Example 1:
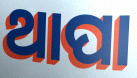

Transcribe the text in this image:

ଥାପା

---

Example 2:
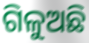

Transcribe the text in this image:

ଗିଳୁଅଛି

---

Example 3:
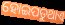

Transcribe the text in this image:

ହୋଇପଡୁଥାଏ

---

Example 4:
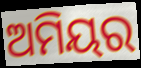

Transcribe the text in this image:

ଅମିୟର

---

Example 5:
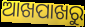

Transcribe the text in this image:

ଆଖପାଖରୁ